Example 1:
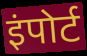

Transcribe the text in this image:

इंपोर्ट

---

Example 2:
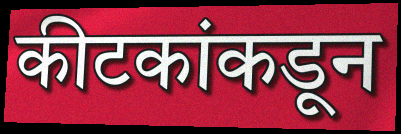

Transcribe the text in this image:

कीटकांकडून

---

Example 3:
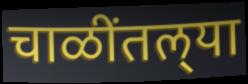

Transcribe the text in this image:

चाळींतल्या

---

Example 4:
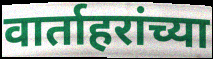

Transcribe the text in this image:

वार्ताहरांच्या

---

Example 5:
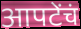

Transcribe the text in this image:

आपटेंचं